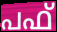
പഫ്